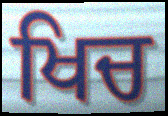
ਖਿਚ